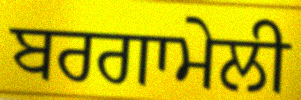
ਬਰਗਾਮੇਲੀ